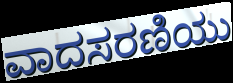
ವಾದಸರಣಿಯು